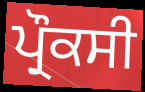
ਪ੍ਰੌਕਸੀ